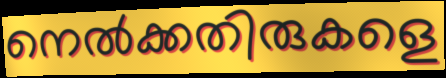
നെൽക്കതിരുകളെ